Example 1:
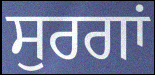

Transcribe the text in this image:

ਸੁਰਗਾਂ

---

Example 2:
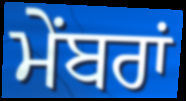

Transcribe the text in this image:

ਮੇਂਬਰਾਂ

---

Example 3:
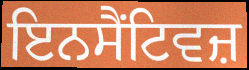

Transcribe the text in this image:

ਇਨਸੈਂਟਿਵਜ਼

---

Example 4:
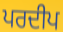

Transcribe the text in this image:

ਪਰਦੀਪ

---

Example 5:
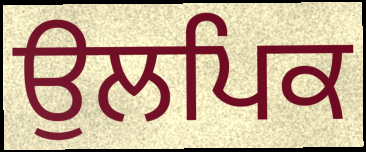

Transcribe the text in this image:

ਉਲਪਿਕ